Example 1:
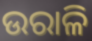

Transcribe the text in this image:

ଉରାଳି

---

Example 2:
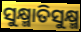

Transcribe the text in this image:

ସୁକ୍ଷ୍ମାତିସୁକ୍ଷ୍ମ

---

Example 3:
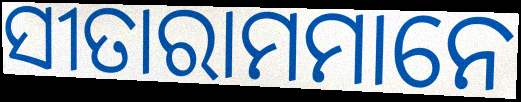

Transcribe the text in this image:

ସୀତାରାମମାନେ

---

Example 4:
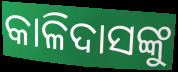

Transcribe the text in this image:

କାଳିଦାସଙ୍କୁ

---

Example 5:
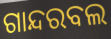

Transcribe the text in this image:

ଗାନ୍ଦରବଲ